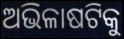
ଅଭିଳାଷଟିକୁ